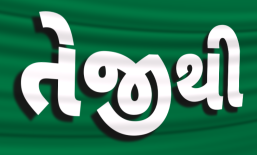
તેજીથી